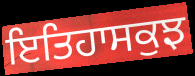
ਇਤਿਹਾਸਕੁਝ